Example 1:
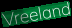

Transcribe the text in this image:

Vreeland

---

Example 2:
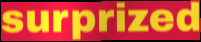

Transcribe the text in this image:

surprized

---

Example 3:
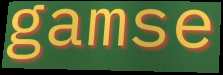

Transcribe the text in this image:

gamse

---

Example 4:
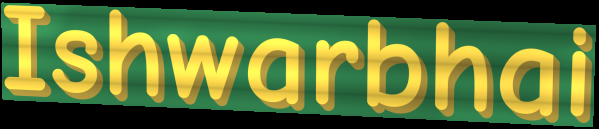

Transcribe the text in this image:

Ishwarbhai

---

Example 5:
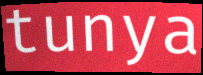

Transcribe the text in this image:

tunya